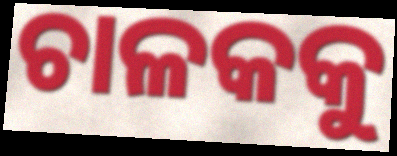
ଚାଳକକୁ